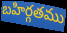
బహిర్గతము